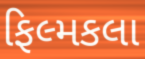
ફિલ્મકલા